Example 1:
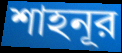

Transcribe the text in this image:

শাহনূর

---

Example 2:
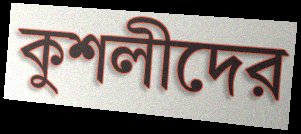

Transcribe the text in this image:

কুশলীদের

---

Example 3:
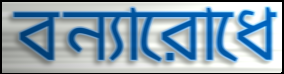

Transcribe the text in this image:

বন্যারোধে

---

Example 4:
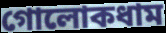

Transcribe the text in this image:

গোলোকধাম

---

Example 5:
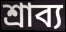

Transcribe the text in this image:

শ্রাব্য